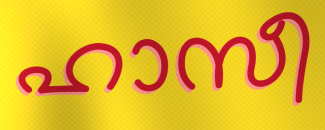
ഹാസീ